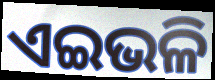
ଏଇଭଳି